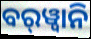
ବର୍‍ୱ୍ୱାନି